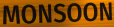
MONSOON